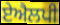
ਏਐਲਪੀ